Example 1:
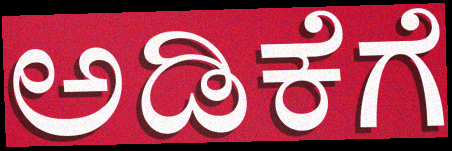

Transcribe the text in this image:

ಅಡಿಕೆಗೆ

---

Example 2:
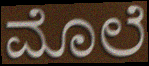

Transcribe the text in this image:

ಮೊಲೆ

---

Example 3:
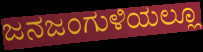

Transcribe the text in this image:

ಜನಜಂಗುಳಿಯಲ್ಲೂ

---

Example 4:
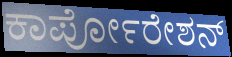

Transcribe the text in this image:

ಕಾರ್ಪೋರೇಶನ್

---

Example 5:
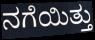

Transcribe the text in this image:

ನಗೆಯಿತ್ತು